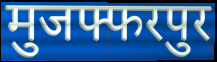
मुजफ्फरपुर